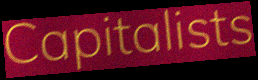
Capitalists